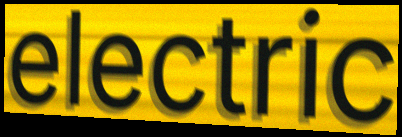
electric